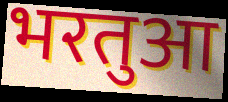
भरतुआ